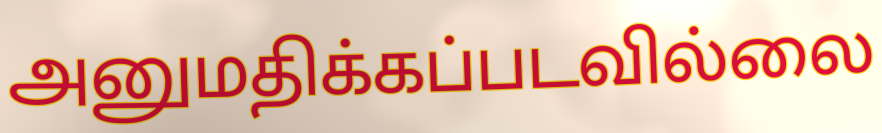
அனுமதிக்கப்படவில்லை